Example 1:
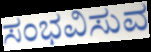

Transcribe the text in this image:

ಸಂಭವಿಸುವ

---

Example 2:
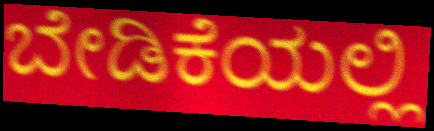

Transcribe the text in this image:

ಬೇಡಿಕೆಯಲ್ಲಿ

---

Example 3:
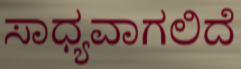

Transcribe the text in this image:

ಸಾಧ್ಯವಾಗಲಿದೆ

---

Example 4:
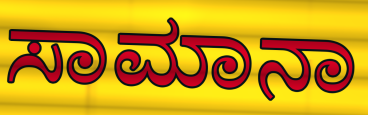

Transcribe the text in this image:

ಸಾಮಾನಾ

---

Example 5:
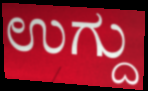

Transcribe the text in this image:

ಉಗ್ದು